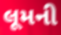
લૂમની